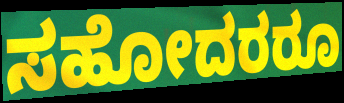
ಸಹೋದರರೂ